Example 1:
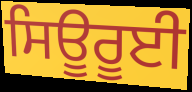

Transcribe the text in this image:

ਸਿਊਰੂਈ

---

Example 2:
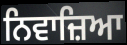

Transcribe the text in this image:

ਨਿਵਾਜ਼ਿਆ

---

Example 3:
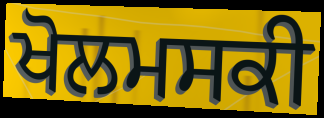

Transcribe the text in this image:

ਖੋਲਮਸਕੀ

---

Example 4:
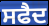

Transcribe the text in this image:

ਸਫੈਦ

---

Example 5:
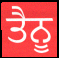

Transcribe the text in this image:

ਤੈਨੂ